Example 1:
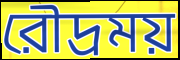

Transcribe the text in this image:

রৌদ্রময়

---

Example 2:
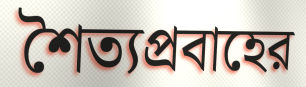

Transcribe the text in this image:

শৈত্যপ্রবাহের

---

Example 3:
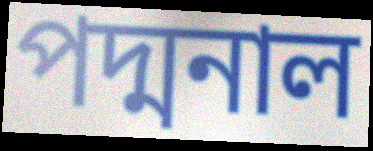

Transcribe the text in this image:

পদ্মনাল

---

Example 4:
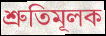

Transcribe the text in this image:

শ্রুতিমূলক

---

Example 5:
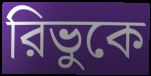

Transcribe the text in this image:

রিভুকে